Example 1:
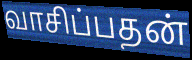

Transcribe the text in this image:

வாசிப்பதன்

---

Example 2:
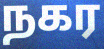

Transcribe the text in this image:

நகர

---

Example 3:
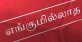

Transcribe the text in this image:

எங்குமில்லாத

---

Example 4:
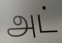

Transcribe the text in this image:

அட்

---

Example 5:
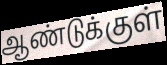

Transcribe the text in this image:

ஆண்டுக்குள்